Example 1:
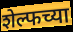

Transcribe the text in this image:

शेल्फच्या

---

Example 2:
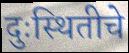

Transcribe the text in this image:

दुःस्थितीचे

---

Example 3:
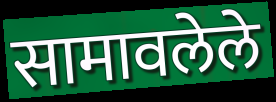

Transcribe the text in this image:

सामावलेले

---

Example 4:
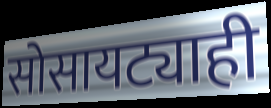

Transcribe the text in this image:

सोसायट्याही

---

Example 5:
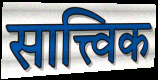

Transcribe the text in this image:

सात्त्विक